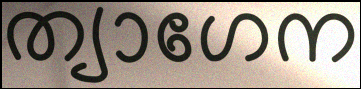
ത്യാഗേന